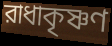
রাধাকৃষ্ণণ